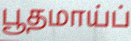
பூதமாய்ப்